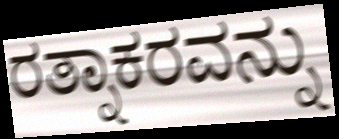
ರತ್ನಾಕರವನ್ನು